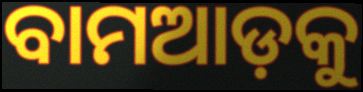
ବାମଆଡ଼କୁ